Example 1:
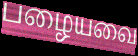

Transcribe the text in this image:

பழையவை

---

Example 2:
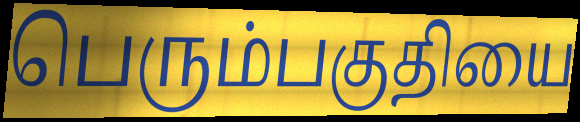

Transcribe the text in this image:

பெரும்பகுதியை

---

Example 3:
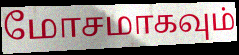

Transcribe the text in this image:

மோசமாகவும்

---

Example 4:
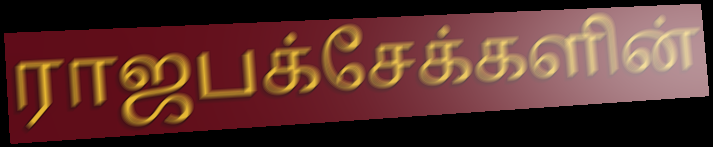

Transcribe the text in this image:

ராஜபக்சேக்களின்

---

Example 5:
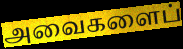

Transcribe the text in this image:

அவைகளைப்